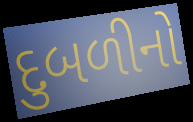
દુબળીનો